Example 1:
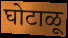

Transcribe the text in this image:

घोटाळू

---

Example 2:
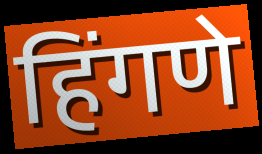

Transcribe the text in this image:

हिंगणे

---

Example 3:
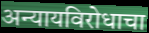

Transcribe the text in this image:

अन्यायविरोधाचा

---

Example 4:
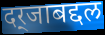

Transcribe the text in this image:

दर्जाबद्दल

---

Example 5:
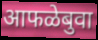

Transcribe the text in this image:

आफळेबुवा